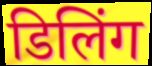
डिलिंग